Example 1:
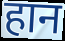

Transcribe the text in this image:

हान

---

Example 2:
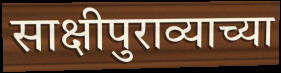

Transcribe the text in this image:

साक्षीपुराव्याच्या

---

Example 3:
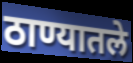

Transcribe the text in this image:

ठाण्यातले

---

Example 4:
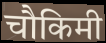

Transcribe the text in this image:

चौकिमी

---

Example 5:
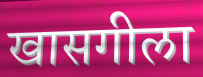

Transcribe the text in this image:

खासगीला